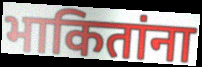
भाकितांना